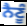
ਨੈਣੂੰ